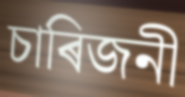
চাৰিজনী